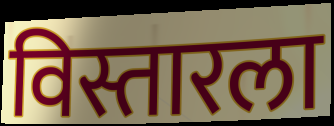
विस्तारला